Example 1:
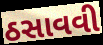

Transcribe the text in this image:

ઠસાવવી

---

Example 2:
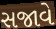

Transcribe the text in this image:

સજાવે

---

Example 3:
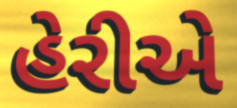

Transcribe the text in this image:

હેરીએ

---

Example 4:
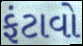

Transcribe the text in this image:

ફંટાવો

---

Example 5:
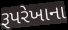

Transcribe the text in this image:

રૂપરેખાના